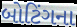
બોટિંગના